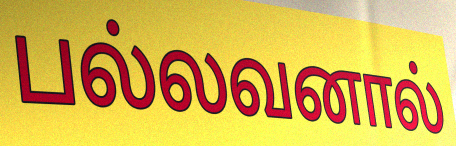
பல்லவனால்